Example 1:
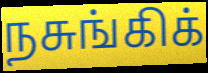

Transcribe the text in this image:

நசுங்கிக்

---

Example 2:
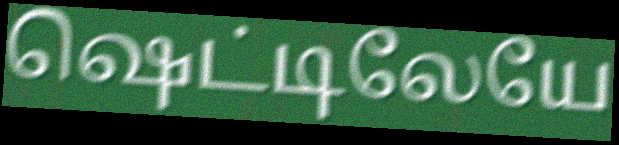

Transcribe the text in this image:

ஷெட்டிலேயே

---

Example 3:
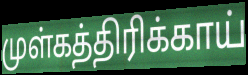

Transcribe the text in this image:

முள்கத்திரிக்காய்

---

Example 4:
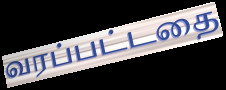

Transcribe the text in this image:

வரப்பட்டதை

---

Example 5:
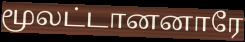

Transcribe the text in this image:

மூலட்டானனாரே